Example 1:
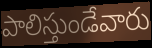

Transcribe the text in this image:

పాలిస్తుండేవారు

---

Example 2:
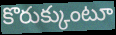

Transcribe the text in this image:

కొరుక్కుంటూ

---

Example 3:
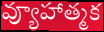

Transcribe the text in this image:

వ్యూహాత్మక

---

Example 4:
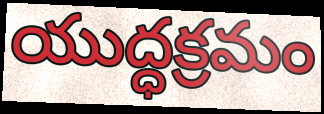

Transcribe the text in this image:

యుద్ధక్రమం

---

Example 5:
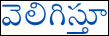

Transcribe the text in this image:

వెలిగిస్తూ